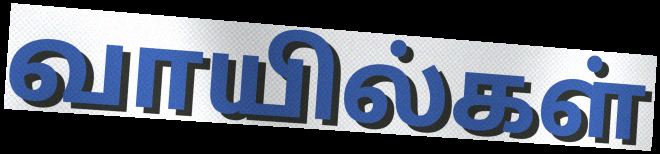
வாயில்கள்